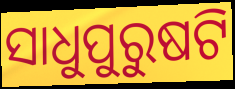
ସାଧୁପୁରୁଷଟି